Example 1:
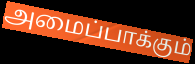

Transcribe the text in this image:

அமைப்பாக்கும்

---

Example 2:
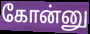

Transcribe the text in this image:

கோன்னு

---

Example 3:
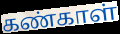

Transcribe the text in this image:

கண்காள்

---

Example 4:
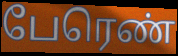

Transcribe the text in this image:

பேரெண்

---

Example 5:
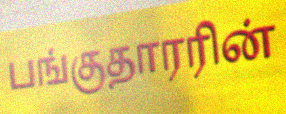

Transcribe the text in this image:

பங்குதாரரின்